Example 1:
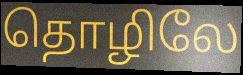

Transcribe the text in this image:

தொழிலே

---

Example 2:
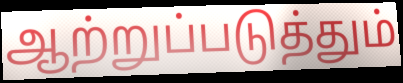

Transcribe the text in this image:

ஆற்றுப்படுத்தும்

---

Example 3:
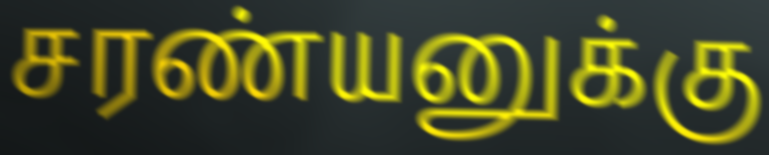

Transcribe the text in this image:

சரண்யனுக்கு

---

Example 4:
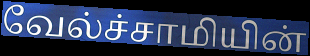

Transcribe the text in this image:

வேல்ச்சாமியின்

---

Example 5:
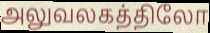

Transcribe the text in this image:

அலுவலகத்திலோ